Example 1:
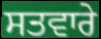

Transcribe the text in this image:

ਸਤਵਾਰੇ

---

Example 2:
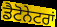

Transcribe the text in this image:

ਡੈਟੋਨੇਟਰਾਂ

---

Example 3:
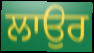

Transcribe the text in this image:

ਲਾਉਰ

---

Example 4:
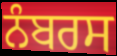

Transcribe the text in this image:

ਨੰਬਰਸ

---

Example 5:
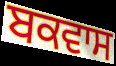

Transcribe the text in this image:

ਬਕਵਾਸ